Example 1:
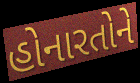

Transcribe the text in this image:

હોનારતોને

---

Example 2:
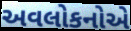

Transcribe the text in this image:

અવલોકનોએ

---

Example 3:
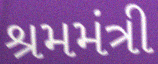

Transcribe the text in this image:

શ્રમમંત્રી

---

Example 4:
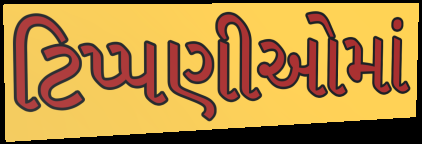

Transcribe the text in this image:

ટિપ્પણીઓમાં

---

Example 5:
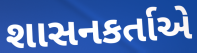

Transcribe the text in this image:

શાસનકર્તાએ